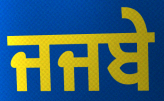
ਜਜਬੇ